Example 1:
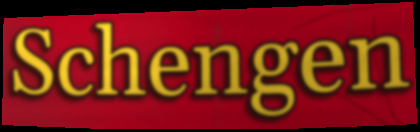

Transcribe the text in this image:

Schengen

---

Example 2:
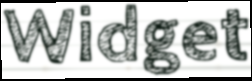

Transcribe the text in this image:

Widget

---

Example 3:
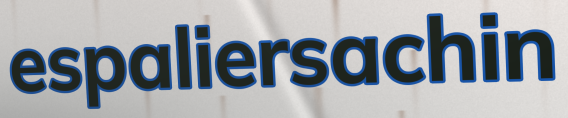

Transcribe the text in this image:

espaliersachin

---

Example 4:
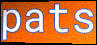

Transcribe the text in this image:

pats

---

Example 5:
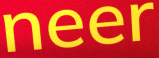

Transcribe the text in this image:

neer